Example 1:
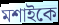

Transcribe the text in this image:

মশাইকে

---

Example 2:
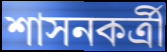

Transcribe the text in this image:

শাসনকর্ত্রী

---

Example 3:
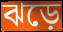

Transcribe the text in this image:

ঝড়ে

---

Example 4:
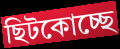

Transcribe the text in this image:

ছিটকোচ্ছে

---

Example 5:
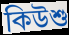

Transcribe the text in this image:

কিউশু